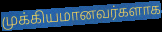
முக்கியமானவர்களாக